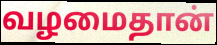
வழமைதான்